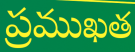
ప్రముఖత